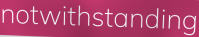
notwithstanding